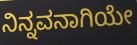
ನಿನ್ನವನಾಗಿಯೇ